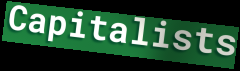
Capitalists